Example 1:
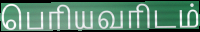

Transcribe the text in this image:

பெரியவரிடம்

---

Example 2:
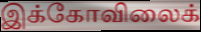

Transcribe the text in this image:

இக்கோவிலைக்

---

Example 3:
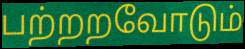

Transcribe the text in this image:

பற்றறவோடும்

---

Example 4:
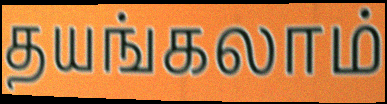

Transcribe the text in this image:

தயங்கலாம்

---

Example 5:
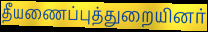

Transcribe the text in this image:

தீயணைப்புத்துறையினர்